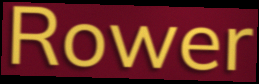
Rower